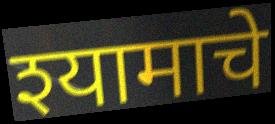
श्यामाचे